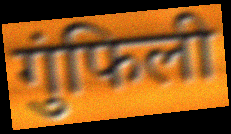
गुंफिली